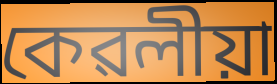
কেৱলীয়া